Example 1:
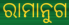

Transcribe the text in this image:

ରାମାନୁଗ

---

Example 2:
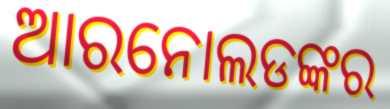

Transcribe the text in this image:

ଆରନୋଲଡଙ୍କର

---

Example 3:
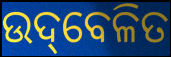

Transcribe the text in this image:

ଉଦ୍‌ବେଳିତ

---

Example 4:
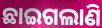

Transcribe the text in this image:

ଛାଇଗଲାଣି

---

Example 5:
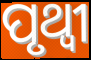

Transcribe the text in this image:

ପୃଥ୍ଵୀ